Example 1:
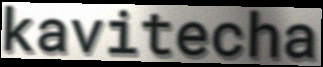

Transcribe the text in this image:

kavitecha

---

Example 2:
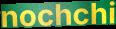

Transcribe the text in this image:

nochchi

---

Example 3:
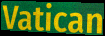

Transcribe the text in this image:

Vatican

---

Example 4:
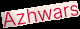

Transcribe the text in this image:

Azhwars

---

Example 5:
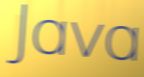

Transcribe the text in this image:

Java